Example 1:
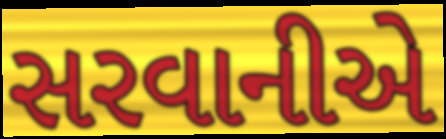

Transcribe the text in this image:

સરવાનીએ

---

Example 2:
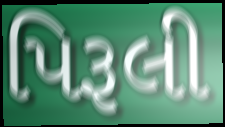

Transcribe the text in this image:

પિરૂલી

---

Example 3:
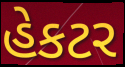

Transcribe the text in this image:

હેકટર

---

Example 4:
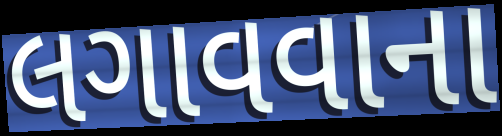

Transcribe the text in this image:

લગાવવાના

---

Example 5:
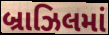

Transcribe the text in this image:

બ્રાઝિલમાં